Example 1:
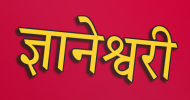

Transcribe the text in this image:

ज्ञानेश्वरी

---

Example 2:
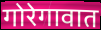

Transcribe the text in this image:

गोरेगावात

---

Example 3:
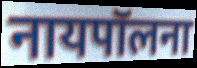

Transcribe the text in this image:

नायपॉलना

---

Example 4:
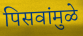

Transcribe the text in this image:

पिसवांमुळे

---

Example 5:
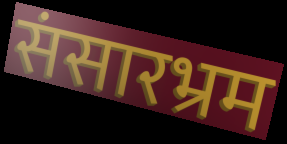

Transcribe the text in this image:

संसारभ्रम